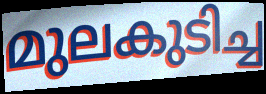
മുലകുടിച്ച